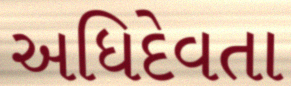
અધિદેવતા